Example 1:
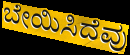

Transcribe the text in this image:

ಬೇಯಿಸಿದೆವು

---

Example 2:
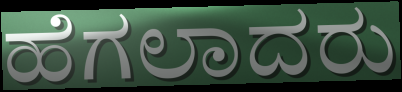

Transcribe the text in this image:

ಹೆಗಲಾದರು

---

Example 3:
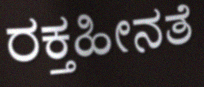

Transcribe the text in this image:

ರಕ್ತಹೀನತೆ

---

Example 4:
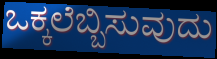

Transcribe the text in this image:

ಒಕ್ಕಲೆಬ್ಬಿಸುವುದು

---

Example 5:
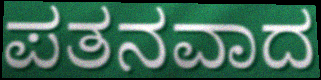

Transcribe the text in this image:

ಪತನವಾದ